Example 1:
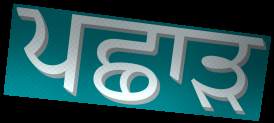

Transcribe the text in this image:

ਪਛਾੜ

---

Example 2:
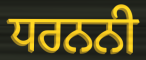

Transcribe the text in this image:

ਧਰਨਨੀ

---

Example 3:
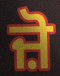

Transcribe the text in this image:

ਜ਼ੋ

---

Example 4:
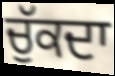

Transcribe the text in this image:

ਚੁੱਕਦਾ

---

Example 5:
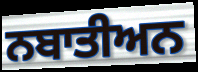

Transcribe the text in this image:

ਨਬਾਤੀਅਨ